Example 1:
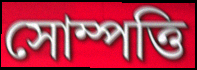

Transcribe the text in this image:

সোম্পত্তি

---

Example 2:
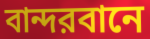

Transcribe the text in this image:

বান্দরবানে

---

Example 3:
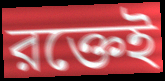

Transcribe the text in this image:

রক্তেই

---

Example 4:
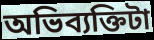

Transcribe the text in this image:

অভিব্যক্তিটা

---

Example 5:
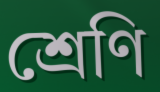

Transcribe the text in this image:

শ্রেণি